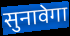
सुनावेगा